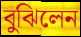
বুঝিলেন